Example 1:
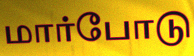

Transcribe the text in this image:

மார்போடு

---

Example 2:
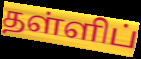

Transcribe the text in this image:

தள்ளிப்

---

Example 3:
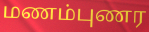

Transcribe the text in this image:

மணம்புணர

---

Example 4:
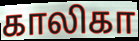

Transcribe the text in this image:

காலிகா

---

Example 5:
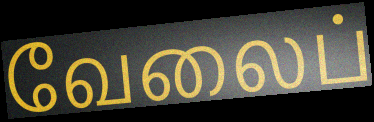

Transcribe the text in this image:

வேலைப்